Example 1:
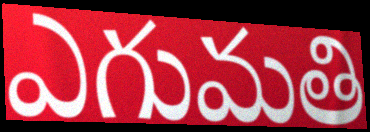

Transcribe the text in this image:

ఎగుమతి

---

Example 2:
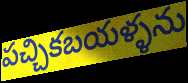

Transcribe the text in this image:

పచ్చికబయళ్ళను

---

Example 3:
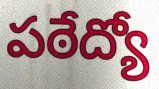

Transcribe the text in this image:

పఠేద్యో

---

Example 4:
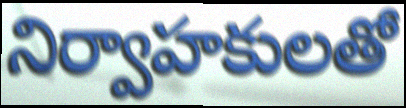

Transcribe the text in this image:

నిర్వాహకులతో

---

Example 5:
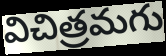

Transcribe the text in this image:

విచిత్రమగు